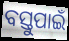
ବସ୍ତୁପାଇଁ